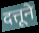
दत्तूने